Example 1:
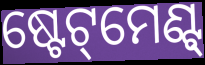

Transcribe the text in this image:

ଷ୍ଟେଟ୍‌ମେଣ୍ଟ୍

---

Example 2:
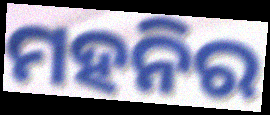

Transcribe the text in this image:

ମହନିର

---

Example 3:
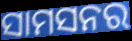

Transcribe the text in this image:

ସାମସନର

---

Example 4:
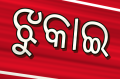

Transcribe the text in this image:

ଝୁକାଇ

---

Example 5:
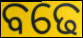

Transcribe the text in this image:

ବଢେ